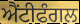
ਐਂਟੀਫੰਗਲ